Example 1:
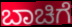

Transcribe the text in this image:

ಬಾಚಿಗೆ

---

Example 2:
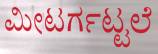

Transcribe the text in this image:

ಮೀಟರ್ಗಟ್ಟಲೆ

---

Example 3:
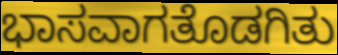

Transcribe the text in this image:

ಭಾಸವಾಗತೊಡಗಿತು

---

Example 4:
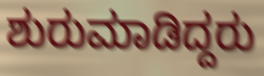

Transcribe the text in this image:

ಶುರುಮಾಡಿದ್ದರು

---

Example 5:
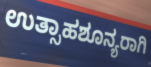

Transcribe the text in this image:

ಉತ್ಸಾಹಶೂನ್ಯರಾಗಿ